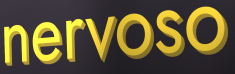
nervoso